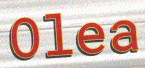
Olea